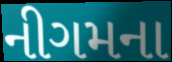
નીગમના